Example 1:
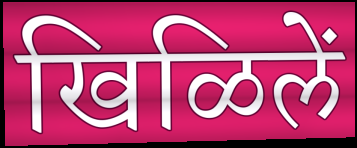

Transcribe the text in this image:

खिळिलें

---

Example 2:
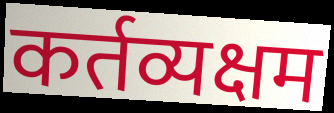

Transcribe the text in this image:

कर्तव्यक्षम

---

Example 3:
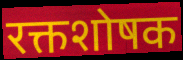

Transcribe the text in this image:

रक्तशोषक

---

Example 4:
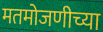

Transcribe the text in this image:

मतमोजणीच्या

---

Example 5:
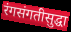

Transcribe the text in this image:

रंगसंगतीसुद्धा